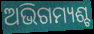
ଅଭିଗମ୍ୟଶ୍ଚ